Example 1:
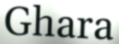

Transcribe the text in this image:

Ghara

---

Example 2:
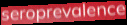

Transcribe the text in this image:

seroprevalence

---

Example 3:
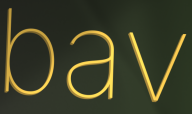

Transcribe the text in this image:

bav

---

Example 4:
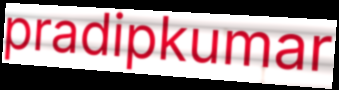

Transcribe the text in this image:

pradipkumar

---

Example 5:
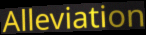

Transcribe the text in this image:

Alleviation